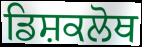
ਡਿਸ਼ਕਲੋਥ